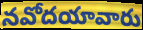
నవోదయావారు